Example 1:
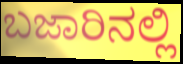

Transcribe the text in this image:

ಬಜಾರಿನಲ್ಲಿ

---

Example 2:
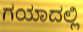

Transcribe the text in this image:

ಗಯಾದಲ್ಲಿ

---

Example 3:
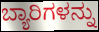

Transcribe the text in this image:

ಬ್ಯಾರಿಗಳನ್ನು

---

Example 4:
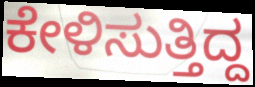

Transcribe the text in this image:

ಕೇಳಿಸುತ್ತಿದ್ದ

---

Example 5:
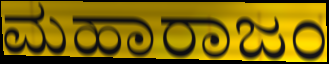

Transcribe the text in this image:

ಮಹಾರಾಜಂ